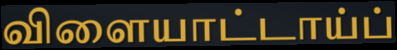
விளையாட்டாய்ப்